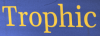
Trophic